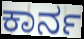
ಕಾರ್ನ